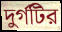
দুর্গটির